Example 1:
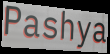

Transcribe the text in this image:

Pashya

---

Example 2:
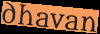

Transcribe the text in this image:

dhavan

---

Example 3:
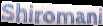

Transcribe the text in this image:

Shiromani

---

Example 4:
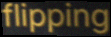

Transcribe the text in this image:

flipping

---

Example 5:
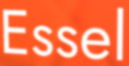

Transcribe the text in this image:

Essel